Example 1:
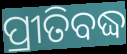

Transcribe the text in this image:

ପ୍ରୀତିବଦ୍ଧ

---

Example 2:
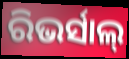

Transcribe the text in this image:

ରିଭର୍ସାଲ୍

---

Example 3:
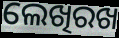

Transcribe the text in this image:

ଲେଖିରଖ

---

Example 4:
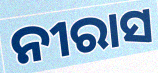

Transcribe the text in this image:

ନୀରାସ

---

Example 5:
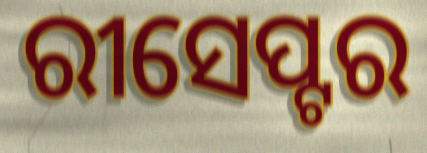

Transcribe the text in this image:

ରୀସେପ୍ଟର